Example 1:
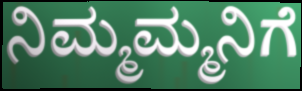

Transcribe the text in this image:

ನಿಮ್ಮಮ್ಮನಿಗೆ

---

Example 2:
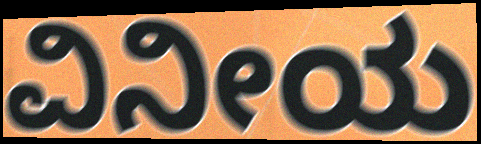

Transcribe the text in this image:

ವಿನೀಯ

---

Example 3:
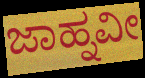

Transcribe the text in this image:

ಜಾಹ್ನವೀ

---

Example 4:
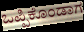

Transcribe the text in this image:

ಒಪ್ಪಿಕೊಂಡಾಗ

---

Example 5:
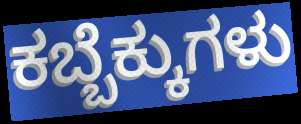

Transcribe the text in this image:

ಕಬ್ಬೆಕ್ಕುಗಳು